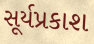
સૂર્યપ્રકાશ